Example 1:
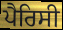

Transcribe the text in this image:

ਪੈਰਿਸੀ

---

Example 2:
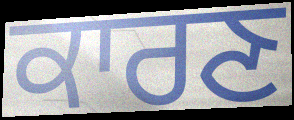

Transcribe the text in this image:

ਕਾਰਣ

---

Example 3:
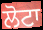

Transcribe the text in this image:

ਲੋਟਾ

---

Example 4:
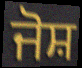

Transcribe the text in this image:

ਜੋਸ਼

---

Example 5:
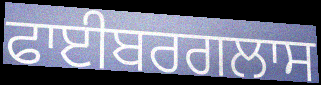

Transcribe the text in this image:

ਫਾਈਬਰਗਲਾਸ